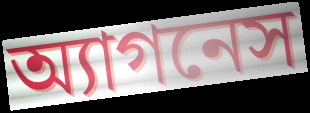
অ্যাগনেস